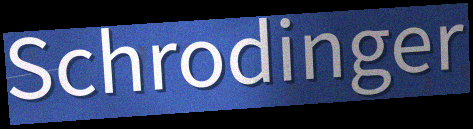
Schrodinger